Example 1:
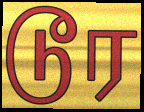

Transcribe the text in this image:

டூர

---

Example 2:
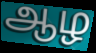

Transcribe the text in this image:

ஆழ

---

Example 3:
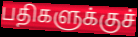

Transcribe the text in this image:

பதிகளுக்குச்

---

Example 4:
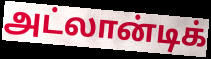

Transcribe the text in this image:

அட்லான்டிக்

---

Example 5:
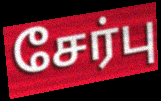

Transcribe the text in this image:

சேர்பு